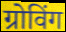
ग्रोविंग